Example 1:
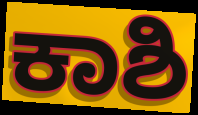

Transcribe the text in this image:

ಕಾಶಿ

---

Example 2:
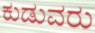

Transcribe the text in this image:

ಕುಡುವರು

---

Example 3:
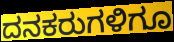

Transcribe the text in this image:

ದನಕರುಗಳಿಗೂ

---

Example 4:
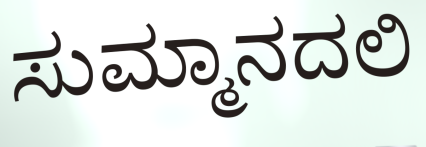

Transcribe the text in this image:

ಸುಮ್ಮಾನದಲಿ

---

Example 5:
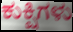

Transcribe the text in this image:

ಕುಕ್ಷಿಗಳು